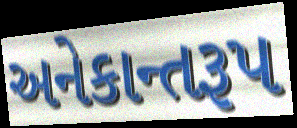
અનેકાન્તરૂપ